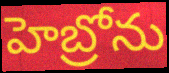
హెబ్రోను